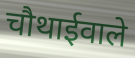
चौथाईवाले